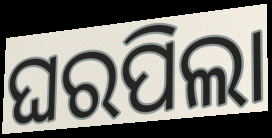
ଘରପିଲା